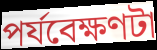
পর্যবেক্ষণটা